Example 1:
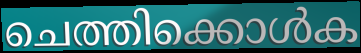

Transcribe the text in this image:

ചെത്തിക്കൊൾക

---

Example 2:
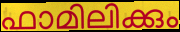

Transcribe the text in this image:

ഫാമിലിക്കും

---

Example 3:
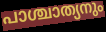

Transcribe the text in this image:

പാശ്ചാത്യനും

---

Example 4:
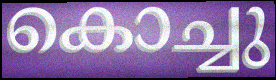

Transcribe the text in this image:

കൊച്ചു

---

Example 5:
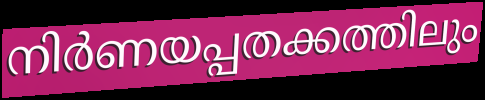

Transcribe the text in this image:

നിർണയപ്പതക്കത്തിലും